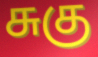
சுகு